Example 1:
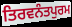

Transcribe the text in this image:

ਤਿਰਵਨੰਤਪੁਰਮ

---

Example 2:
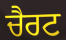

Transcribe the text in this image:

ਚੈਰਟ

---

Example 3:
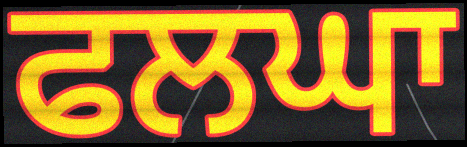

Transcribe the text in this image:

ਫਲਘਾ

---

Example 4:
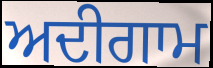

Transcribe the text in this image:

ਅਦੀਗਾਮ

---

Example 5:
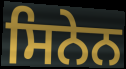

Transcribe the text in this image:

ਸਿਨੇਨ